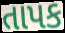
તાપક